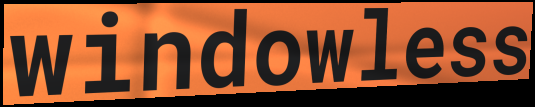
windowless